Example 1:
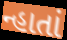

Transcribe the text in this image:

ન્હાતાં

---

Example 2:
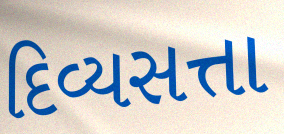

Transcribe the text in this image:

દિવ્યસત્તા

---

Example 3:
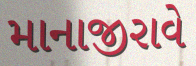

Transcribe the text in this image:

માનાજીરાવે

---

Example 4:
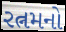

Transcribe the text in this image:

રત્નમનો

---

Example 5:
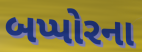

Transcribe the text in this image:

બપ્પોરના